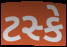
ટસ્કે